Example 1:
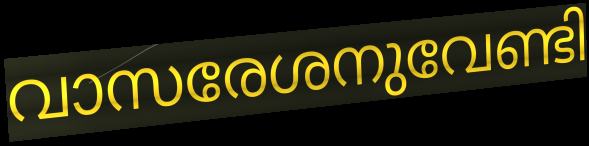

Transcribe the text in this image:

വാസരേശനുവേണ്ടി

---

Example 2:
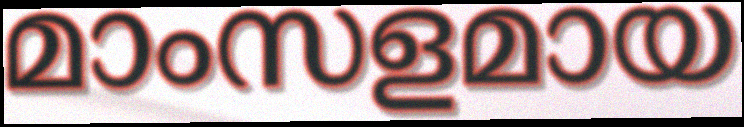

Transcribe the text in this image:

മാംസളമായ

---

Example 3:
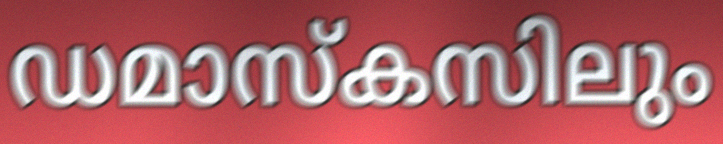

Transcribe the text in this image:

ഡമാസ്കസിലും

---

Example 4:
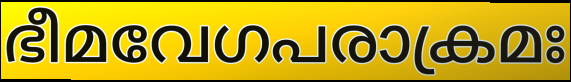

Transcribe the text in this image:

ഭീമവേഗപരാക്രമഃ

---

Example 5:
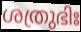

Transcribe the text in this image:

ശത്രുഭിഃ